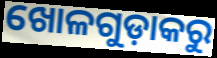
ଖୋଳଗୁଡ଼ାକରୁ